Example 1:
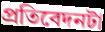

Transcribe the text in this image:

প্রতিবেদনটা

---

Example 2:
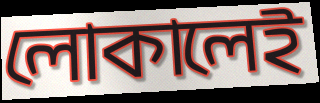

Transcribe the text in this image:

লোকালেই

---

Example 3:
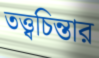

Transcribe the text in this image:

তত্ত্বচিন্তার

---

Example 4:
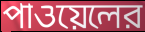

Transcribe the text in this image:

পাওয়েলের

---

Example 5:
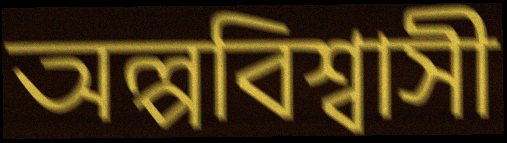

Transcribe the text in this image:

অল্পবিশ্বাসী